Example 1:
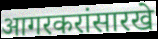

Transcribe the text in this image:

आगरकरांसारखे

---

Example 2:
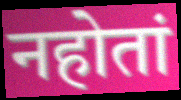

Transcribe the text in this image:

नहोतां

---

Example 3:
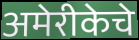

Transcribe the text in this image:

अमेरीकेचे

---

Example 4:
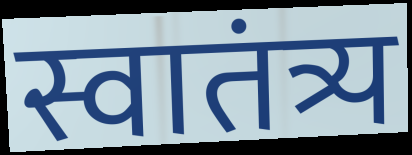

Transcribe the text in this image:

स्‍वातंत्र्य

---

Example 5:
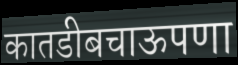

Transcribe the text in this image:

कातडीबचाऊपणा